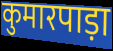
कुमारपाड़ा